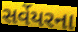
સર્વેયરના